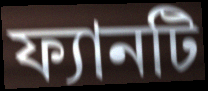
ফ্যানটি